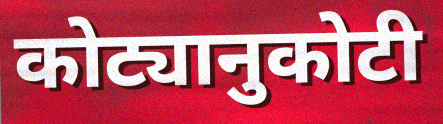
कोट्यानुकोटी